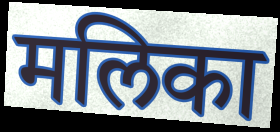
मलिका